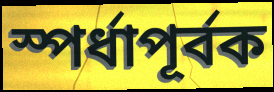
স্পর্ধাপূর্বক